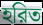
হরিত